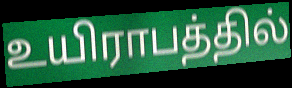
உயிராபத்தில்